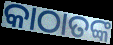
କାଠାତଙ୍କ